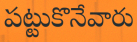
పట్టుకొనేవారు